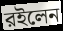
রইলেন